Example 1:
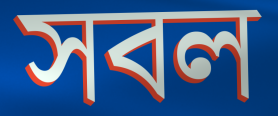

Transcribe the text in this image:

সবল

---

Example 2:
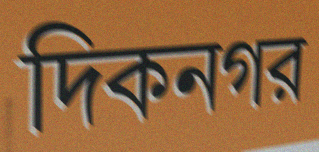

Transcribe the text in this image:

দিকনগর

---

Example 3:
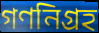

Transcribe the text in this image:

গণনিগ্রহ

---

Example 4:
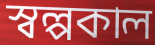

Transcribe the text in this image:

স্বল্পকাল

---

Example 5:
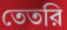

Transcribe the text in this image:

তেতরি